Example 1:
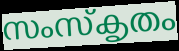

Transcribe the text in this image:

സംസ്‌കൃതം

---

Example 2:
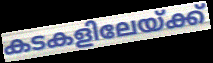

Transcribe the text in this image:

കടകളിലേയ്ക്ക്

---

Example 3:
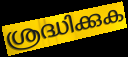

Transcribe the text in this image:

ശ്രദ്ധിക്കുക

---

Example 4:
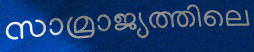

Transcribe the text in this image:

സാമ്രാജ്യത്തിലെ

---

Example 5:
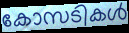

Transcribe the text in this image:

കോസടികൾ